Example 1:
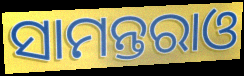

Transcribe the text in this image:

ସାମନ୍ତରାଓ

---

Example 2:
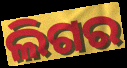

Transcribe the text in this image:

ଲିଗର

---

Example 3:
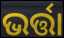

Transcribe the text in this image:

ଭର୍ତ୍ତା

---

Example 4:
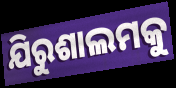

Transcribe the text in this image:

ଯିରୁଶାଲମକୁ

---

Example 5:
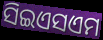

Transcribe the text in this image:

ସିଇଏସଏମ